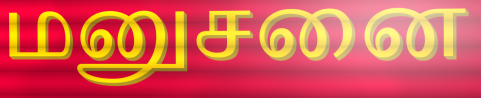
மனுசனை